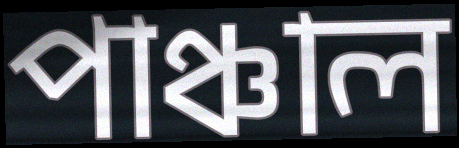
পাঞ্চাল